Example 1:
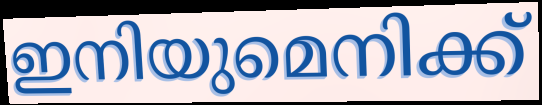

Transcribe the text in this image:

ഇനിയുമെനിക്ക്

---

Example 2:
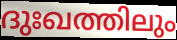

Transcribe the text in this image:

ദുഃഖത്തിലും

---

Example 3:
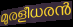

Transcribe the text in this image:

മുരളീധരൻ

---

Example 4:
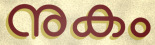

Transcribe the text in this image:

നുകം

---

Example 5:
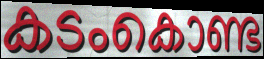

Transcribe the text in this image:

കടംകൊണ്ട